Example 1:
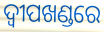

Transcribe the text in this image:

ଦ୍ଵୀପଖଣ୍ଡରେ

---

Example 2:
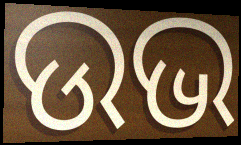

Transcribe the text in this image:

ଉଭ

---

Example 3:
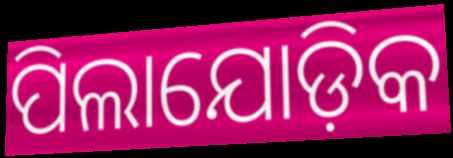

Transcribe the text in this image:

ପିଲାଯୋଡ଼ିକ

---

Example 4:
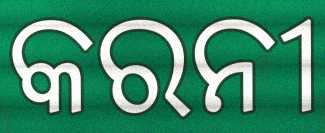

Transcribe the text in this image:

କରନୀ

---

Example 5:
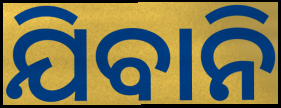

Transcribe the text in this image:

ଯିବାନି